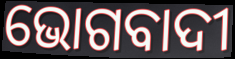
ଭୋଗବାଦୀ